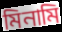
মিনামি